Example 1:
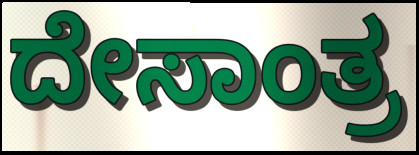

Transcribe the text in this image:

ದೇಸಾಂತ್ರ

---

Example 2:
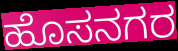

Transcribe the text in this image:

ಹೊಸನಗರ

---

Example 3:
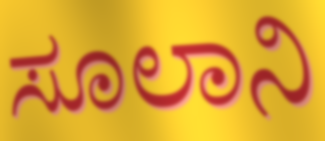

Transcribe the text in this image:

ಸೂಲಾನಿ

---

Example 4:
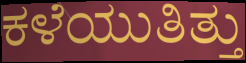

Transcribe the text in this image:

ಕಳೆಯುತಿತ್ತು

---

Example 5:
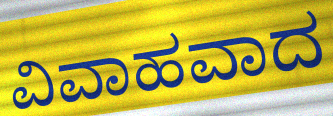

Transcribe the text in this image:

ವಿವಾಹವಾದ